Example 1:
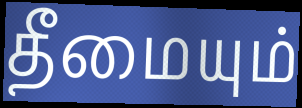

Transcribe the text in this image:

தீமையும்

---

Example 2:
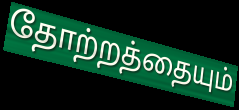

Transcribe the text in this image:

தோற்றத்தையும்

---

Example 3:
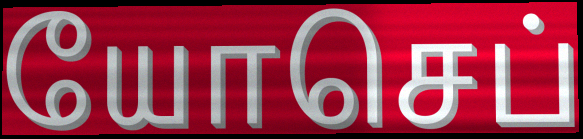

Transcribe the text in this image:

யோசெப்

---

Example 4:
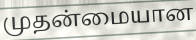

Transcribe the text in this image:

முதன்மையான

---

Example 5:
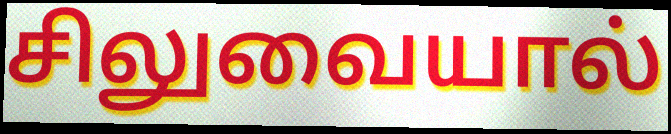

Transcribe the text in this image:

சிலுவையால்